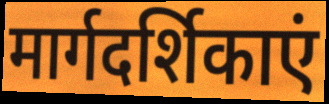
मार्गदर्शिकाएं